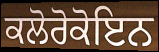
ਕਲੋਰੋਕੋਇਨ